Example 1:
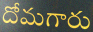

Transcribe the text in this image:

దోమగారు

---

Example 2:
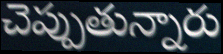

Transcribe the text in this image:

చెప్పుతున్నారు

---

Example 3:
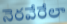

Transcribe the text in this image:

నెరవేరేలా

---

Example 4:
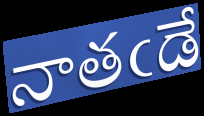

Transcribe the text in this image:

నాతఁడే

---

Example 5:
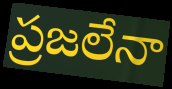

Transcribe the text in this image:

ప్రజలేనా